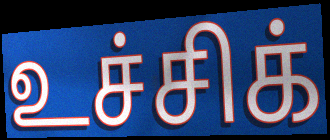
உச்சிக்